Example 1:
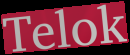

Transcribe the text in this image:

Telok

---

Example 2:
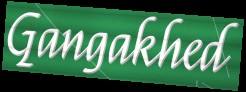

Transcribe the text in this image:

Gangakhed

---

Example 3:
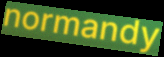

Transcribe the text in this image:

normandy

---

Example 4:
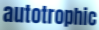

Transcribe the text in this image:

autotrophic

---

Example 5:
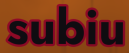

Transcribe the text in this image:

subiu